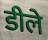
डीले